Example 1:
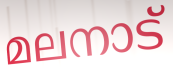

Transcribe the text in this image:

മലനാട്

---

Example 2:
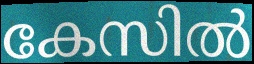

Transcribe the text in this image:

കേസിൽ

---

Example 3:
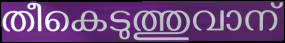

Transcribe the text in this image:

തീകെടുത്തുവാന്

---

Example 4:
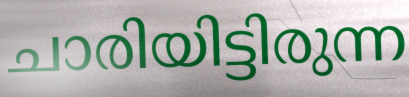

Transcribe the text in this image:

ചാരിയിട്ടിരുന്ന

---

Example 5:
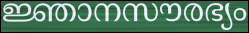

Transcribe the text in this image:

ജ്ഞാനസൗരഭ്യം